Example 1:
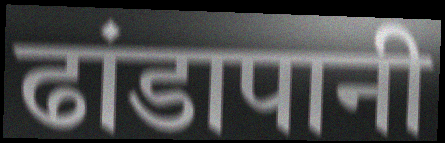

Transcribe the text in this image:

ढांडापानी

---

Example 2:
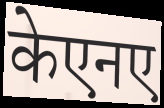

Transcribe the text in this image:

केएनए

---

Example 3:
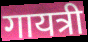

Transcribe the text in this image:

गायत्री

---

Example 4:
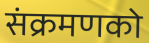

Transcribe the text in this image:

संक्रमणको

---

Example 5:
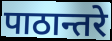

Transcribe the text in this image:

पाठान्तरे